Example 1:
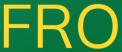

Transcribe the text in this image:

FRO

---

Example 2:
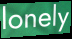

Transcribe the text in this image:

lonely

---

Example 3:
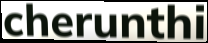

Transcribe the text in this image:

cherunthi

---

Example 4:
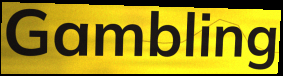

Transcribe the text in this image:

Gambling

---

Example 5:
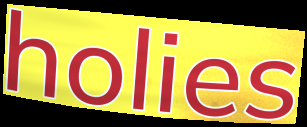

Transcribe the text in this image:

holies